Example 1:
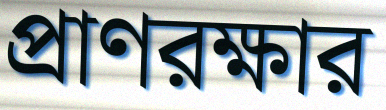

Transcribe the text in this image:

প্রাণরক্ষার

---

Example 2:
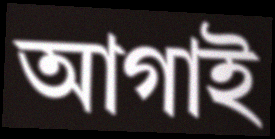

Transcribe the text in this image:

আগাই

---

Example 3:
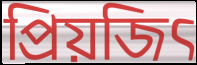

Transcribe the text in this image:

প্রিয়জিৎ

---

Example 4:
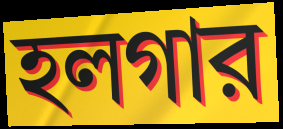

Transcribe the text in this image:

হলগার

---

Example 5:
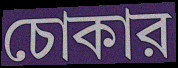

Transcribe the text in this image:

চোকার